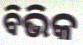
ବିଭିକ